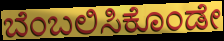
ಬೆಂಬಲಿಸಿಕೊಂಡೇ